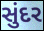
સુંદર